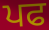
ਪਫ